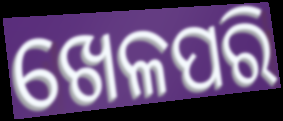
ଖେଳପରି